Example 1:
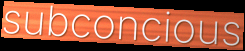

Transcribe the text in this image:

subconcious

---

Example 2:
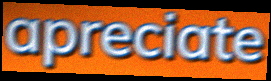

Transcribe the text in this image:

apreciate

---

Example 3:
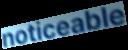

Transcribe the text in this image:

noticeable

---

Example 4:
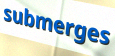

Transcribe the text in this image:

submerges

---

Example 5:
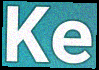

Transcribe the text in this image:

Ke